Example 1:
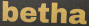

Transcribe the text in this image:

betha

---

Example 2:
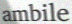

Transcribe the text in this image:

ambile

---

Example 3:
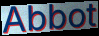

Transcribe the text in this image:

Abbot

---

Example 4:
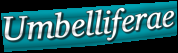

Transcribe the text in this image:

Umbelliferae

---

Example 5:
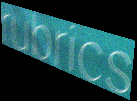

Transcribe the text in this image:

rubrics